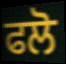
ਫਲੋ